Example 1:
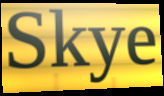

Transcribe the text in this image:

Skye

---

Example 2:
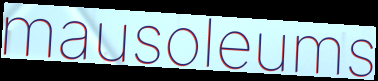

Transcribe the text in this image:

mausoleums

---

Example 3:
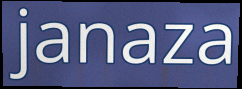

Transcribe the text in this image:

janaza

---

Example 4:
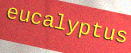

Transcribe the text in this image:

eucalyptus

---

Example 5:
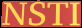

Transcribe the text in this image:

NSTI